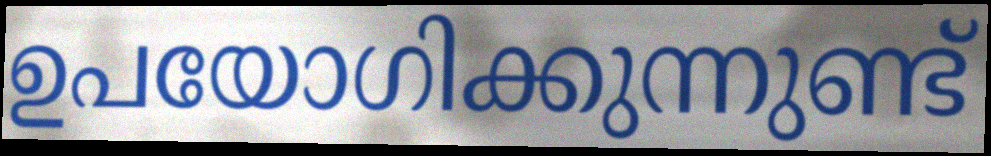
ഉപയോഗിക്കുന്നുണ്ട്